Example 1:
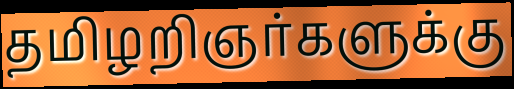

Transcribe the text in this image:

தமிழறிஞர்களுக்கு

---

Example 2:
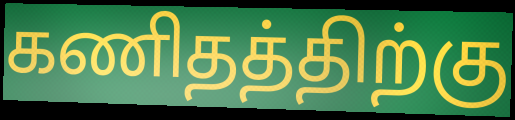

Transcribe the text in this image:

கணிதத்திற்கு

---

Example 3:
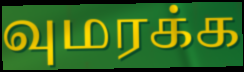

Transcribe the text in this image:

வுமரக்க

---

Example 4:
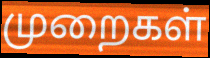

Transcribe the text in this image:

முறைகள்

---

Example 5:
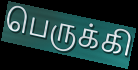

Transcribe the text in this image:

பெருக்கி